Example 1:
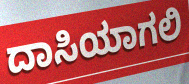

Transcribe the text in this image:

ದಾಸಿಯಾಗಲಿ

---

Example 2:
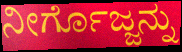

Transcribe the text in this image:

ನೀರ್ಗೊಜ್ಜನ್ನು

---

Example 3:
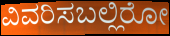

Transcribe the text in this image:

ವಿವರಿಸಬಲ್ಲಿರೋ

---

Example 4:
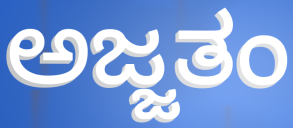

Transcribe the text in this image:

ಅಜ್ಜತಂ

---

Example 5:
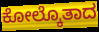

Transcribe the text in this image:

ಕೋಲ್ಕೊತಾದ